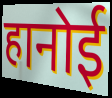
हानोई